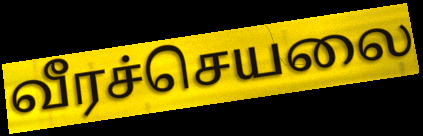
வீரச்செயலை